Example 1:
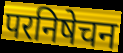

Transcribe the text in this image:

परनिषेचन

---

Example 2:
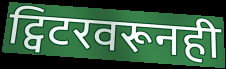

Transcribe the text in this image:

ट्विटरवरूनही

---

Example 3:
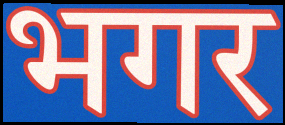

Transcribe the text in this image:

भगर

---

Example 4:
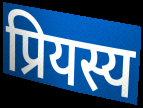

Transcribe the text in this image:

प्रियस्य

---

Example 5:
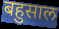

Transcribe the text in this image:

बहुसाल